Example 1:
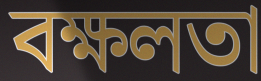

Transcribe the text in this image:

বক্ষলতা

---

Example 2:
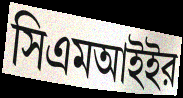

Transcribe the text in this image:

সিএমআইইর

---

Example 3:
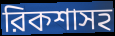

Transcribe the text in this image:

রিকশাসহ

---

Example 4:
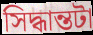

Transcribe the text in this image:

সিদ্ধান্তটা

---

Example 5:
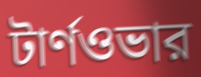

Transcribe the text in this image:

টার্ণওভার